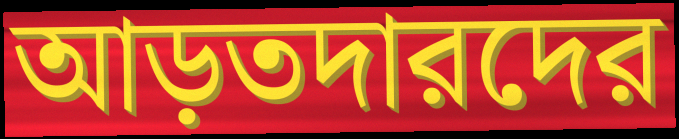
আড়তদারদের